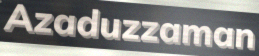
Azaduzzaman